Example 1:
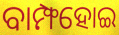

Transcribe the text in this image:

ବାମ୍ଫହୋଇ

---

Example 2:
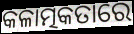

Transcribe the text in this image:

କଳାତ୍ମକତାରେ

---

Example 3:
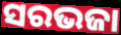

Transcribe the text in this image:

ସରଭଜା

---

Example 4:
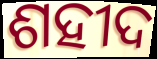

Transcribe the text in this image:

ଶହୀଦ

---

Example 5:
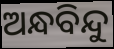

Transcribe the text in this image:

ଅନ୍ଧବିନ୍ଦୁ